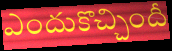
ఎందుకొచ్చిందీ